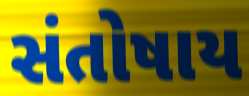
સંતોષાય